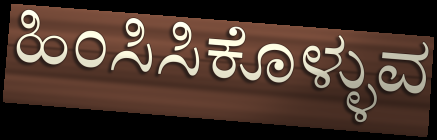
ಹಿಂಸಿಸಿಕೊಳ್ಳುವ